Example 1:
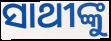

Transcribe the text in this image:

ସାଥୀଙ୍କୁ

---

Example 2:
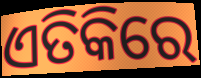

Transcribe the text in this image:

ଏତିକିରେ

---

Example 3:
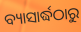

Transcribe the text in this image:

ବ୍ୟାସାର୍ଦ୍ଧଠାରୁ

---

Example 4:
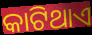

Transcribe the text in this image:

କାଟିଥାଏ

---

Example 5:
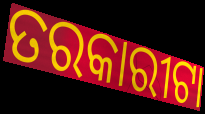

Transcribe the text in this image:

ତରକାରୀଟା